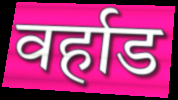
वर्हाड